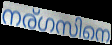
നര്ഗസിനെ